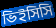
ভিইসিসি